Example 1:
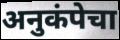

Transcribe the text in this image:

अनुकंपेचा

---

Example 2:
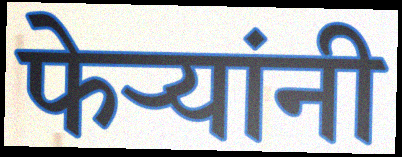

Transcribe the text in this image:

फेऱ्यांनी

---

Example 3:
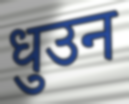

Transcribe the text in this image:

धुउन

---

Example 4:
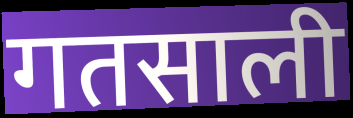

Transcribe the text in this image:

गतसाली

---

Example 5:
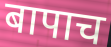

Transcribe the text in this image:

बापाच